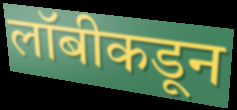
लॉबीकडून